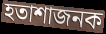
হতাশাজনক